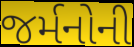
જર્મનોની